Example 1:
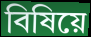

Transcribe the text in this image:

বিষিয়ে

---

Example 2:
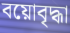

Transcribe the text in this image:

বয়োবৃদ্ধা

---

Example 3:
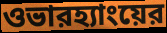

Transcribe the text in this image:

ওভারহ্যাংয়ের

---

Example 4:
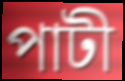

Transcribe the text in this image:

পাটী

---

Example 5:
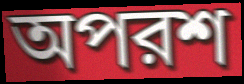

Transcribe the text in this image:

অপরশ